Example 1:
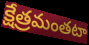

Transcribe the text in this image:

క్షేత్రమంతటా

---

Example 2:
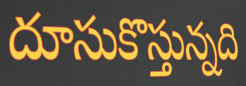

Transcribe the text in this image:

దూసుకొస్తున్నది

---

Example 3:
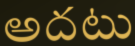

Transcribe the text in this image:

అదటు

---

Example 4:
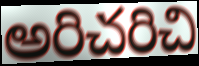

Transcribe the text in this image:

అరిచరిచి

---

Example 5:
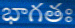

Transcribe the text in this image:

భాగతః